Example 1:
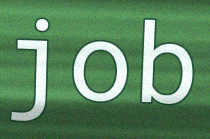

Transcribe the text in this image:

job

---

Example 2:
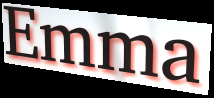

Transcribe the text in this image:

Emma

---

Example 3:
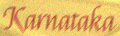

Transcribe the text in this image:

Karnataka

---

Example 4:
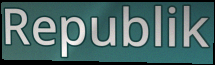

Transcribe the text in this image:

Republik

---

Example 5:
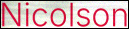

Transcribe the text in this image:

Nicolson